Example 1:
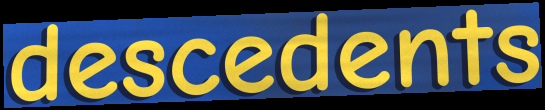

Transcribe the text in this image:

descedents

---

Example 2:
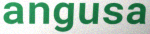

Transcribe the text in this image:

angusa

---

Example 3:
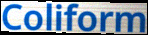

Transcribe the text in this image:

Coliform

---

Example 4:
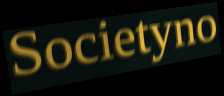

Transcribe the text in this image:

Societyno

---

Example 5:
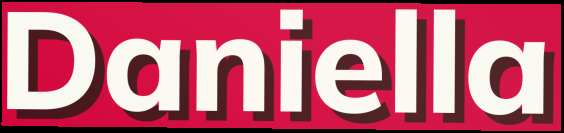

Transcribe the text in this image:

Daniella